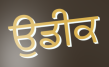
ਉਡੀਕ